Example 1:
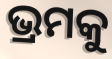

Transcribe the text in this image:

ଭ୍ରମକୁ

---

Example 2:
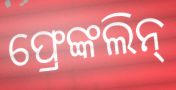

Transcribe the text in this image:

ଫ୍ରେଙ୍କଲିନ୍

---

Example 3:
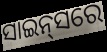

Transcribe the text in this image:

ସାଇନ୍‌ସରେ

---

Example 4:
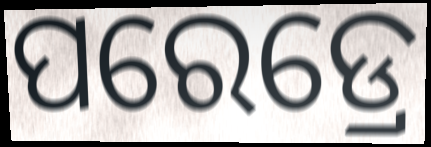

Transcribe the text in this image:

ପରେଡ୍ରେ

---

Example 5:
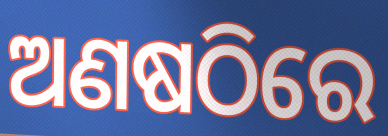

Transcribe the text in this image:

ଅଣଷଠିରେ